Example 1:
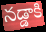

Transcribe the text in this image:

నడ్డాకి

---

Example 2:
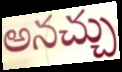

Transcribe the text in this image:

అనచ్చు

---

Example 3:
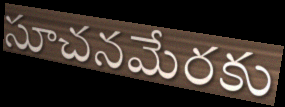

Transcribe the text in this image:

సూచనమేరకు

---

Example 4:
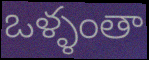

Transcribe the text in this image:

ఒళ్ళంతా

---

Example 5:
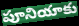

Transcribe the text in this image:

పూనియాకు